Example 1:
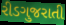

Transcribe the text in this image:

રીડગુજરાતી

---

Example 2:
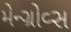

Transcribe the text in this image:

મેન્ગ્રોવ્સ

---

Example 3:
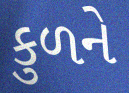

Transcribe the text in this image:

કુળને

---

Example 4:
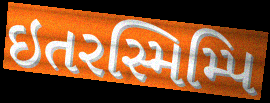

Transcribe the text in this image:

ઇતરસ્મિમ્પિ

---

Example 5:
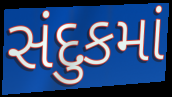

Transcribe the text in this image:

સંદુકમાં